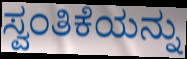
ಸ್ವಂತಿಕೆಯನ್ನು